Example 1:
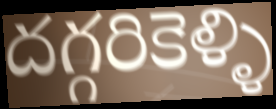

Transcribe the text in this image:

దగ్గరికెళ్ళి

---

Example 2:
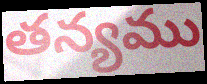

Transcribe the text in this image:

తన్యము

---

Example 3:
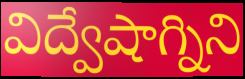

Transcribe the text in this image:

విద్వేషాగ్నిని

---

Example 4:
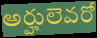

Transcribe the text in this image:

అర్హులెవరో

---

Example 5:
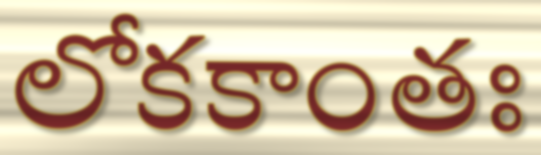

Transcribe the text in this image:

లోకకాంతః